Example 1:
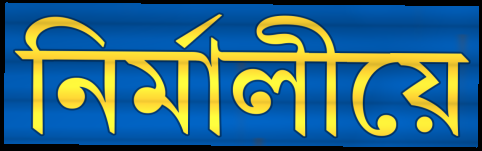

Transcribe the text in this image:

নিৰ্মালীয়ে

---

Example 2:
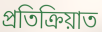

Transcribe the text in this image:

প্ৰতিক্ৰিয়াত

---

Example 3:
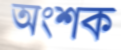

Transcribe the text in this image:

অংশক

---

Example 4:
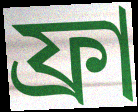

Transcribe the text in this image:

ফ্ৰা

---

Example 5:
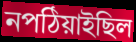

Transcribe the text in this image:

নপঠিয়াইছিল